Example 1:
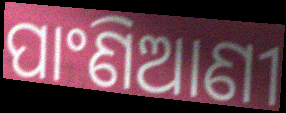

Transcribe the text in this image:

ପାଂଣିଆଣୀ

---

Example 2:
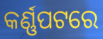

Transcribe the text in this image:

କର୍ଣ୍ଣପଟରେ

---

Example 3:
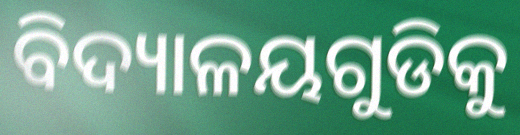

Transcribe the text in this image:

ବିଦ୍ୟାଳୟଗୁଡିକୁ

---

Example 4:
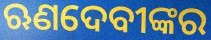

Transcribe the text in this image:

ଋଣଦେବୀଙ୍କର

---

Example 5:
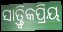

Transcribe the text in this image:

ସାତ୍ତ୍ଵିକପ୍ରିୟ